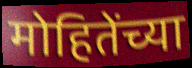
मोहितेंच्या